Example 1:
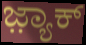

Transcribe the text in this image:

ಜ಼್ಯಾಕ್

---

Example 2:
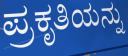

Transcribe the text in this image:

ಪ್ರಕೃತಿಯನ್ನು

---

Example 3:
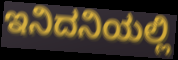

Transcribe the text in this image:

ಇನಿದನಿಯಲ್ಲಿ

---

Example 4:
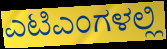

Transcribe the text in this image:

ಎಟಿಎಂಗಳಲ್ಲಿ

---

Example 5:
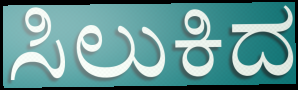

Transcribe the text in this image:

ಸಿಲುಕಿದ